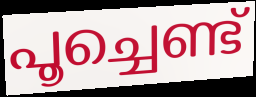
പൂച്ചെണ്ട്